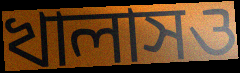
খালাসও